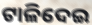
ଟାଳିଦେଇ